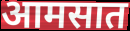
आमसात